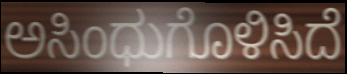
ಅಸಿಂಧುಗೊಳಿಸಿದೆ